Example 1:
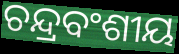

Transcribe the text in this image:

ଚନ୍ଦ୍ରବଂଶୀୟ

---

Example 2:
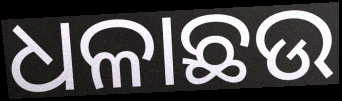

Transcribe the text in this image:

ଧଳାଛଉ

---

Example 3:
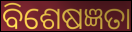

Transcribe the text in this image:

ବିଶେଷଜ୍ଞତା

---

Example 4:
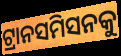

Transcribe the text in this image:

ଟ୍ରାନସମିସନକୁ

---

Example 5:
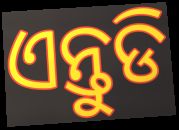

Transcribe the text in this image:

ଏନ୍ତୁଡି